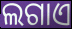
ଲଗାଏ